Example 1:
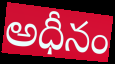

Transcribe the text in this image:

అధీనం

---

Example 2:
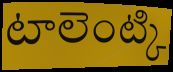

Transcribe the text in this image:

టాలెంట్కి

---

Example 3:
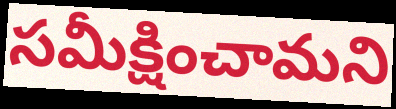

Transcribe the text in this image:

సమీక్షించామని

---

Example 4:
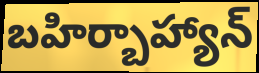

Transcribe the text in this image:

బహిర్బాహ్యాన్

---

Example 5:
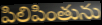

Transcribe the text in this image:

పిలిపింతును